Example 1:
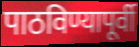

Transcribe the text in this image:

पाठविण्यापूर्वी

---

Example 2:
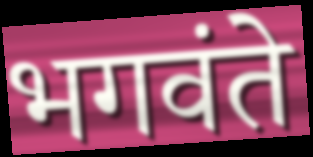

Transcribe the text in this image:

भगवंते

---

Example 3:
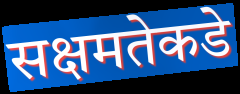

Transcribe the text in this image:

सक्षमतेकडे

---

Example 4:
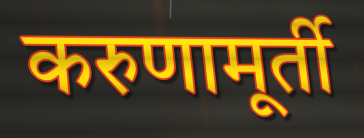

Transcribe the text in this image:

करुणामूर्ती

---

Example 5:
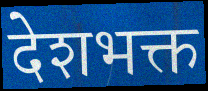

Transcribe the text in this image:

देशभक्त